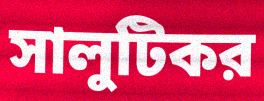
সালুটিকর